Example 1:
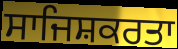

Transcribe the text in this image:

ਸਾਜਿਸ਼ਕਰਤਾ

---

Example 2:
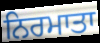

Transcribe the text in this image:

ਨਿਰਮਾਤਾ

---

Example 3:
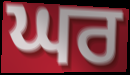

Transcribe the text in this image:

ਘਰ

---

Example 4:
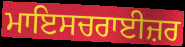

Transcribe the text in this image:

ਮਾਇਸਚਰਾਈਜ਼ਰ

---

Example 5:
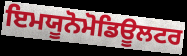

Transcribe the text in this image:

ਇਮਯੂਨੋਮੋਡਿਊਲਟਰ